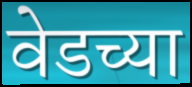
वेडच्या